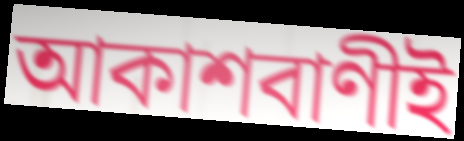
আকাশবাণীই